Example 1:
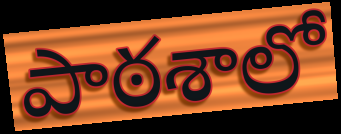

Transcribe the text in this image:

పాఠశాలో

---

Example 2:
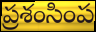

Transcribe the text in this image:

ప్రశంసింప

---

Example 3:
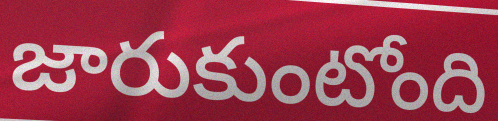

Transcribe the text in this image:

జారుకుంటోంది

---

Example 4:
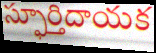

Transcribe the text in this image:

స్ఫూర్తిదాయక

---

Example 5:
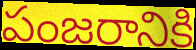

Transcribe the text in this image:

పంజరానికి